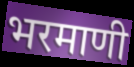
भरमाणी